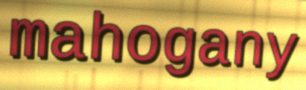
mahogany